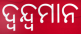
ଦ୍ଵନ୍ଦ୍ଵମାନ